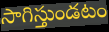
సాగిస్తుండటం